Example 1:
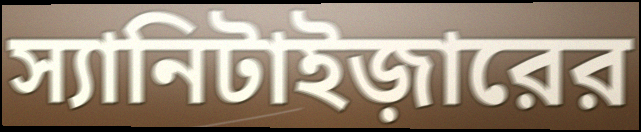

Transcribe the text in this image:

স্যানিটাইজ়ারের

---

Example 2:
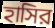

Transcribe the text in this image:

হাসির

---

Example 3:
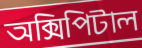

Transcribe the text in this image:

অক্সিপিটাল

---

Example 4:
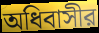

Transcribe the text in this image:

অধিবাসীর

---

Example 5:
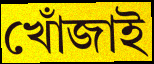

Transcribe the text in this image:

খোঁজাই